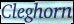
Cleghorn